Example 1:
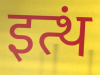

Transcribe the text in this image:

इत्थं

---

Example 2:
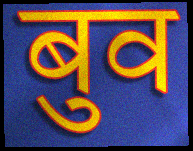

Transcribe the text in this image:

बुव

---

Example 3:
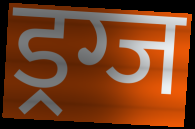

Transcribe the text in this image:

ड्रग्ज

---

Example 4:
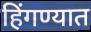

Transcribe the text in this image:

हिंगण्यात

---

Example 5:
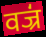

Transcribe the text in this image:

वज्रं॑